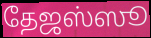
தேஜஸ்ஸூ